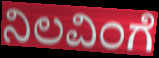
ನಿಲವಿಂಗೆ